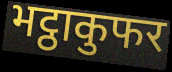
भट्ठाकुफर